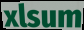
xlsum